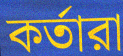
কর্তারা